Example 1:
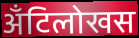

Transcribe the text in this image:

अँटिलोखस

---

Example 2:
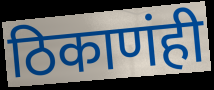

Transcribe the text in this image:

ठिकाणंही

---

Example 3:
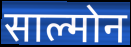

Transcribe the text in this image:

साल्मोन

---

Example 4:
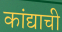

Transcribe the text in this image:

कांद्याची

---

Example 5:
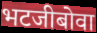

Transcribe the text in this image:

भटजीबोवा